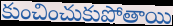
కుంచించుకుపోతాయి